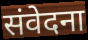
संवेदना